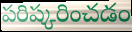
పరిష్కరించడం